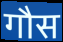
गौस